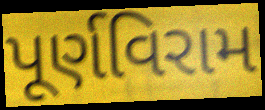
પૂર્ણવિરામ